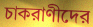
চাকরাণীদের